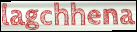
lagchhena